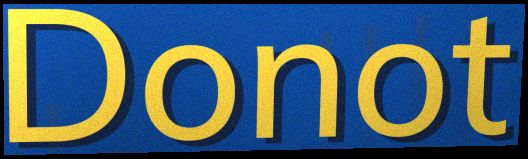
Donot